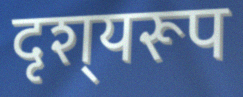
दृश्यरूप